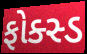
ફોક્સ્ડ